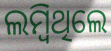
ଲମ୍ବିଥିଲେ